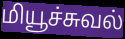
மியூச்சுவல்